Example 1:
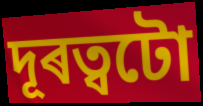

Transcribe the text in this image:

দূৰত্বটো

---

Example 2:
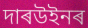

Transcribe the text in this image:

দাৰউইনৰ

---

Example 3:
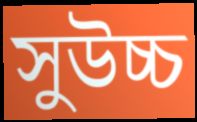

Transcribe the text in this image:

সুউচ্চ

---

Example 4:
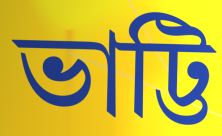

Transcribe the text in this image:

ভাট্টি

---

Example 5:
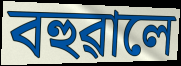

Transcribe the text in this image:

বহুৱালে